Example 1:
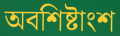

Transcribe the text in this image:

অবশিষ্টাংশ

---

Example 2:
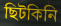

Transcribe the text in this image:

ছিটকিনি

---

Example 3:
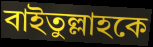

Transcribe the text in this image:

বাইতুল্লাহকে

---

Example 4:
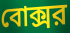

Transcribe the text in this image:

বোক্সর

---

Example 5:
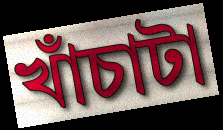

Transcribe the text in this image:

খাঁচাটা